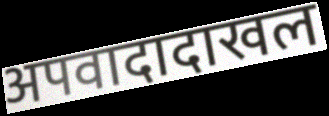
अपवादादाखल